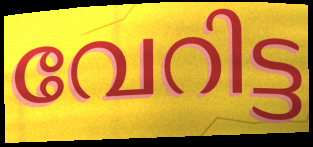
വേറിട്ട